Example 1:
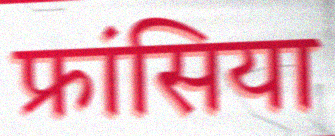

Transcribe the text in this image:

फ्रांसिया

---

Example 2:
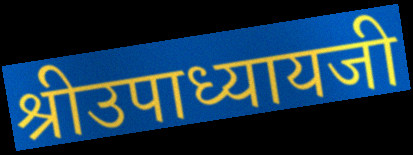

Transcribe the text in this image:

श्रीउपाध्यायजी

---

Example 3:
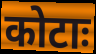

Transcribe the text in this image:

कोटाः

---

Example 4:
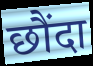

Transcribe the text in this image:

छौंदा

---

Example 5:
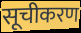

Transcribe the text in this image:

सूचीकरण